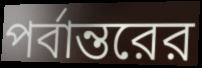
পর্বান্তরের